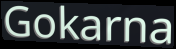
Gokarna